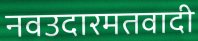
नवउदारमतवादी